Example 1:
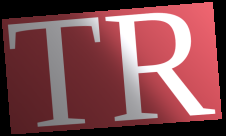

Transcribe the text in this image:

TR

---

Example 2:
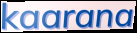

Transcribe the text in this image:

kaarana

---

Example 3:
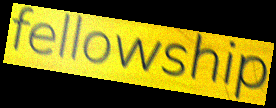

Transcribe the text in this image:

fellowship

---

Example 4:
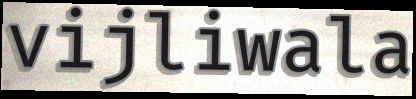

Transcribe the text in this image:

vijliwala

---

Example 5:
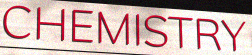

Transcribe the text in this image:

CHEMISTRY